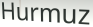
Hurmuz